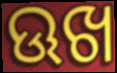
ଊଖ